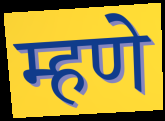
म्हणे